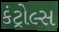
કંટ્રોલ્સ